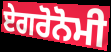
ਏਗਰੋਨੋਮੀ